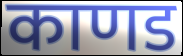
काणड